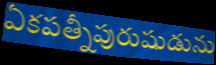
ఏకపత్నీపురుషుడును